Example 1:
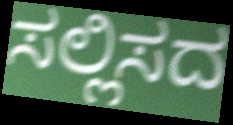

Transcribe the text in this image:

ಸಲ್ಲಿಸದ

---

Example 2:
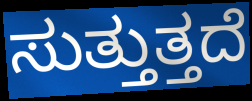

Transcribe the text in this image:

ಸುತ್ತುತ್ತದೆ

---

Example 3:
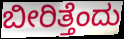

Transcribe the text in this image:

ಬೀರಿತ್ತೆಂದು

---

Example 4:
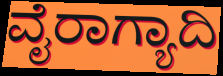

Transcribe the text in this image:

ವೈರಾಗ್ಯಾದಿ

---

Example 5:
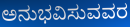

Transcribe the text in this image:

ಅನುಭವಿಸುವವರ